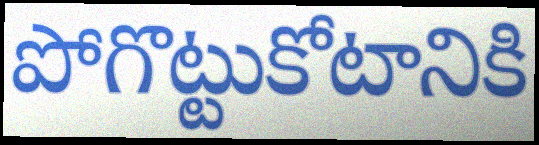
పోగొట్టుకోటానికి